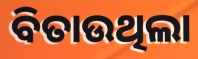
ବିତାଉଥିଲା